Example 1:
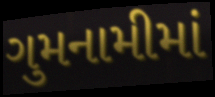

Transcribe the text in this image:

ગુમનામીમાં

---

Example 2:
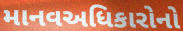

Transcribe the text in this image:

માનવઅધિકારોનો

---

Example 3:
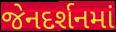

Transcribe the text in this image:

જેનદર્શનમાં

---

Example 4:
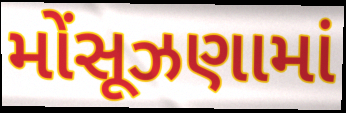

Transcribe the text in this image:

મોંસૂઝણામાં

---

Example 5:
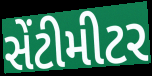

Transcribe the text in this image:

સેંટીમીટર